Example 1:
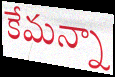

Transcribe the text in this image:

కేమన్నా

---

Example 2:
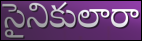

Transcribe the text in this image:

సైనికులారా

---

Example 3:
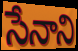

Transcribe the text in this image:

సేనాని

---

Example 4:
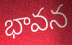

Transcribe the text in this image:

భావన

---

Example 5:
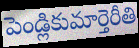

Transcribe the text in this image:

పెండ్లికుమార్తెరీతి